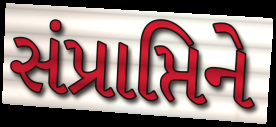
સંપ્રાપ્તિને